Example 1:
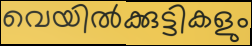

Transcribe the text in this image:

വെയിൽക്കുട്ടികളും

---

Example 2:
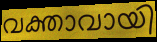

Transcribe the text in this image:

വക്താവായി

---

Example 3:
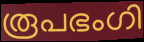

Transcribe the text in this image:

രൂപഭംഗി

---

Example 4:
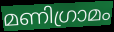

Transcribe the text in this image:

മണിഗ്രാമം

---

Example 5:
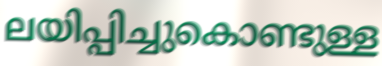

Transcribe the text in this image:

ലയിപ്പിച്ചുകൊണ്ടുള്ള